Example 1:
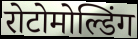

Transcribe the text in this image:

रोटोमोल्डिंग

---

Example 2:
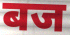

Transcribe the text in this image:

बज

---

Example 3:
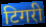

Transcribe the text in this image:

टिगरी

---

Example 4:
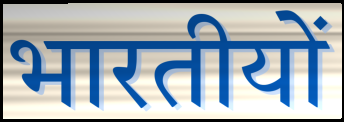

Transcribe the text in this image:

भारतीयों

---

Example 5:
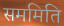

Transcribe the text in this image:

सममिति